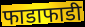
फाडाफाडी